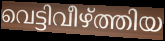
വെട്ടിവീഴ്ത്തിയ